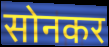
सोनकर